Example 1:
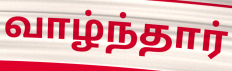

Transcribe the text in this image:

வாழ்ந்தார்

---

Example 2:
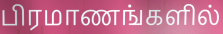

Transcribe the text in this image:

பிரமாணங்களில்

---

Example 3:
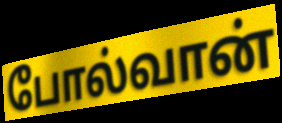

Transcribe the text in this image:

போல்வான்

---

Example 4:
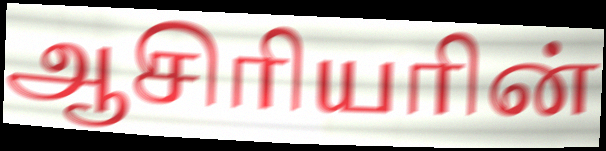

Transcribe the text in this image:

ஆசிரியரின்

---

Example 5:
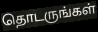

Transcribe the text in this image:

தொடருங்கள்